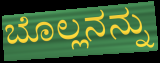
ಬೊಲ್ಲನನ್ನು